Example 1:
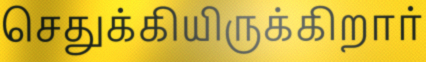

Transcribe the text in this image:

செதுக்கியிருக்கிறார்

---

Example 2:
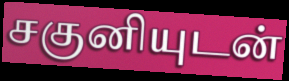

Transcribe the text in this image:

சகுனியுடன்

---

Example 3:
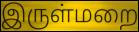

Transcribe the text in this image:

இருள்மறை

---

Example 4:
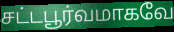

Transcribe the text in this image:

சட்டபூர்வமாகவே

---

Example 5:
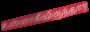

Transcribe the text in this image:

உள்ளாகியிருந்தார்